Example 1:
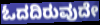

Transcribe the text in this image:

ಓದದಿರುವುದೇ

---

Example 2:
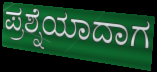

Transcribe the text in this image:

ಪ್ರಶ್ನೆಯಾದಾಗ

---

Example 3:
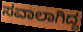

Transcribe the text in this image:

ಸವಾಲಾಗಿದ್ದ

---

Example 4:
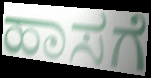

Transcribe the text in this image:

ಹಾಸಗೆ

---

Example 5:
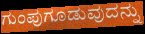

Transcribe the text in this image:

ಗುಂಪುಗೂಡುವುದನ್ನು